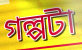
গল্পটা